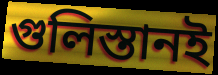
গুলিস্তানই